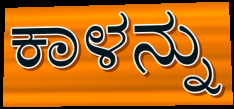
ಕಾಳನ್ನು